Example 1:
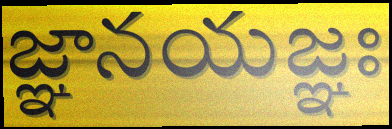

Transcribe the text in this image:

జ్ఞానయజ్ఞః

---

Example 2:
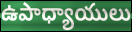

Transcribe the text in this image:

ఉపాధ్యాయులు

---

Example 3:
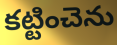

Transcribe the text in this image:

కట్టించెను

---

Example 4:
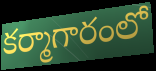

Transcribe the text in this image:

కర్మాగారంలో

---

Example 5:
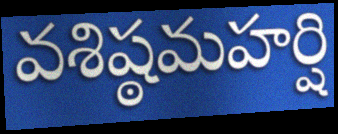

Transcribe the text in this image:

వశిష్ఠమహర్షి